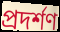
প্ৰদৰ্শণ